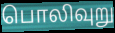
பொலிவுறு